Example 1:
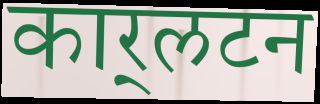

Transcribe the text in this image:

कार्लटन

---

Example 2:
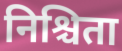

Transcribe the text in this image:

निश्चिता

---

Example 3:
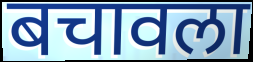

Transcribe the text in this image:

बचावला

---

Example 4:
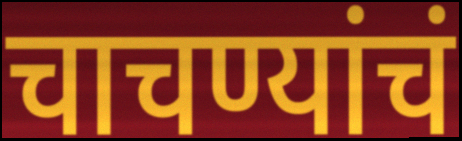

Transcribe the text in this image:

चाचण्यांचं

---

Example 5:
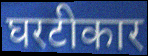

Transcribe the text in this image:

घरटीकार